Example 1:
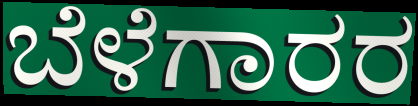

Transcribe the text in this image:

ಬೆಳೆಗಾರರ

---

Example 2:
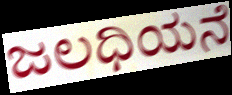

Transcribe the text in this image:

ಜಲಧಿಯನೆ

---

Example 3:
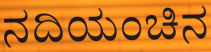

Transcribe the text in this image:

ನದಿಯಂಚಿನ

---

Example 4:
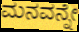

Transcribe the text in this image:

ಮನವನ್ನೇ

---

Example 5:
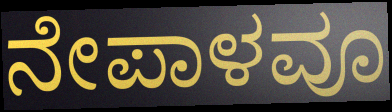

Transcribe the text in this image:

ನೇಪಾಳವೂ